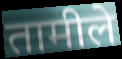
तामीले